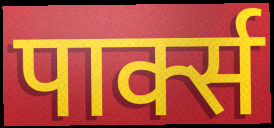
पार्क्स